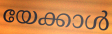
യേക്കാൾ